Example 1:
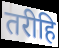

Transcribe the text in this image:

तरीहि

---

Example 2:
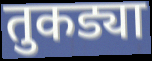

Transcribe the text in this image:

तुकड्या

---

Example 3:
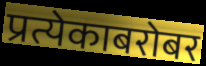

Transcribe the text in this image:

प्रत्येकाबरोबर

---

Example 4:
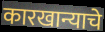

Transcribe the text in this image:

कारखान्याचे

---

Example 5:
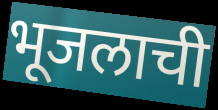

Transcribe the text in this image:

भूजलाची